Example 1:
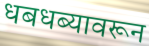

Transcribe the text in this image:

धबधब्यावरून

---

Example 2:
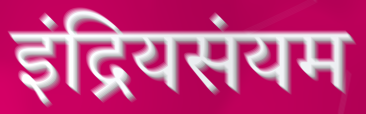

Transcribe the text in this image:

इंद्रियसंयम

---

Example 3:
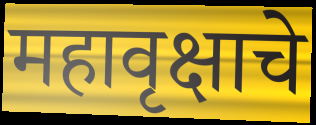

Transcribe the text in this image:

महावृक्षाचे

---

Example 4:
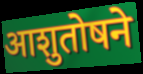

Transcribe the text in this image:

आशुतोषने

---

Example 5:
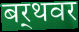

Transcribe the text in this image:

बर्थवर